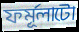
ফৰ্মূলাটো